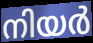
നിയർ